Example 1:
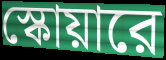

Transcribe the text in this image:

স্কোয়ারে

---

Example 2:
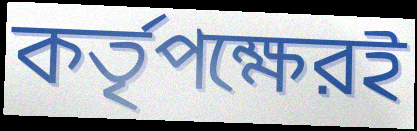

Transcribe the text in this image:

কর্তৃপক্ষেরই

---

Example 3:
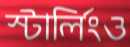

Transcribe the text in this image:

স্টার্লিংও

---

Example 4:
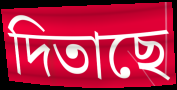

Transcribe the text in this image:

দিতাছে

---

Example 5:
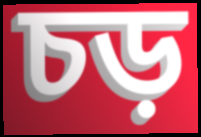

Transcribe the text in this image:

চড়